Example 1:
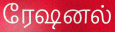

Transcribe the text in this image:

ரேஷனல்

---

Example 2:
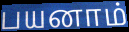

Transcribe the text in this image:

பயனாம்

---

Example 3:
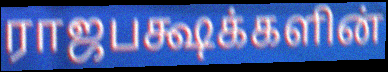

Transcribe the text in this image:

ராஜபக்ஷக்களின்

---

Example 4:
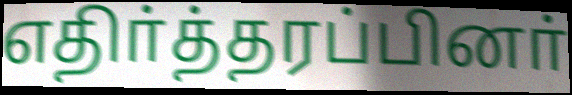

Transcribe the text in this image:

எதிர்த்தரப்பினர்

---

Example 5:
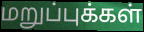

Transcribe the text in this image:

மறுப்புக்கள்